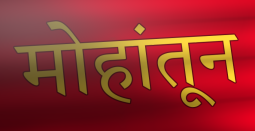
मोहांतून